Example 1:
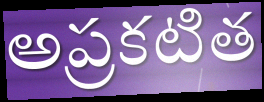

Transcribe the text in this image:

అప్రకటిత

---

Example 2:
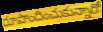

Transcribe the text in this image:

రూపొందించుకున్నారో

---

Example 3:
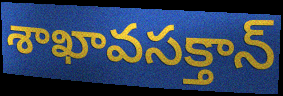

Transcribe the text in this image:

శాఖావసక్తాన్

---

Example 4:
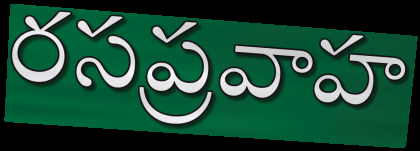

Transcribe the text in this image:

రసప్రవాహ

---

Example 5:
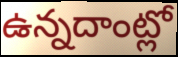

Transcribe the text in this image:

ఉన్నదాంట్లో